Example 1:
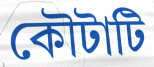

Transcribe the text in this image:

কৌটাটি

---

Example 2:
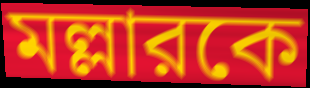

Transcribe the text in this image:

মল্লারকে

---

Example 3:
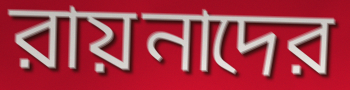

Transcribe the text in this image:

রায়নাদের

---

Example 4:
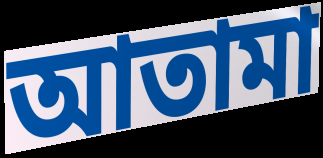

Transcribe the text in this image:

আতামা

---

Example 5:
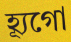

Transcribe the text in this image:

হ্যূগো